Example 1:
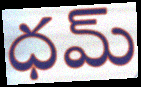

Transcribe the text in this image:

ధమ్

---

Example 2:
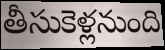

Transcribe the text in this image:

తీసుకెళ్లనుంది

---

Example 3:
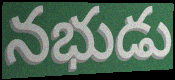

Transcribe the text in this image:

నభుడు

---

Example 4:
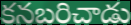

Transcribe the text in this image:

కనబరిచాడు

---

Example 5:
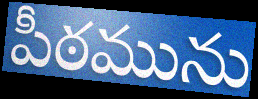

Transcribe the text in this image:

పీఠమును